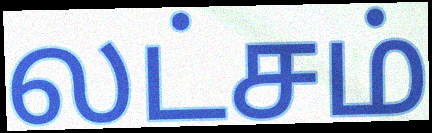
லட்சம்